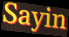
Sayin